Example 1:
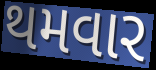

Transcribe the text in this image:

થમવાર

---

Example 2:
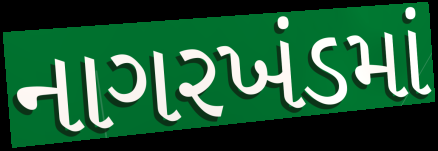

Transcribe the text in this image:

નાગરખંડમાં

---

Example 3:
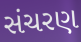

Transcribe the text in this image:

સંચરણ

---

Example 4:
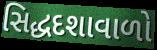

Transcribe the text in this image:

સિદ્ધદશાવાળો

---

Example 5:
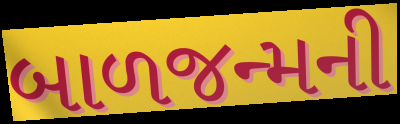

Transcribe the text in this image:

બાળજન્મની